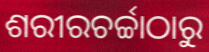
ଶରୀରଚର୍ଚ୍ଚାଠାରୁ